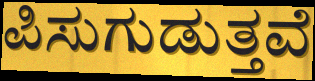
ಪಿಸುಗುಡುತ್ತವೆ